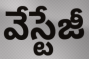
వేస్టేజీ